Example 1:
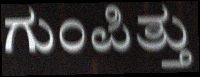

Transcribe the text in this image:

ಗುಂಪಿತ್ತು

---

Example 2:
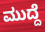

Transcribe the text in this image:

ಮುದ್ದೆ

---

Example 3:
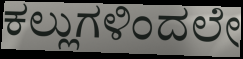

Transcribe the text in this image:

ಕಲ್ಲುಗಳಿಂದಲೇ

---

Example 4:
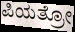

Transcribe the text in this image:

ಪಿಯತ್ರೋ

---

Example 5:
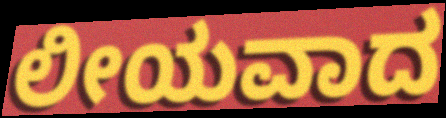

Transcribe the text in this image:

ಲೀಯವಾದ